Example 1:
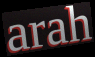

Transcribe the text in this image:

arah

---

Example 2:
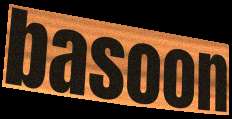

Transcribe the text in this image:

basoon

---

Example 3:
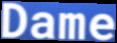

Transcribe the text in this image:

Dame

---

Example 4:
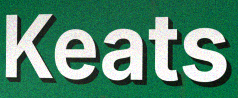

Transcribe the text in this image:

Keats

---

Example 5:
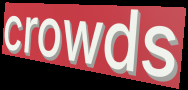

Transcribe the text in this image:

crowds